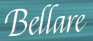
Bellare